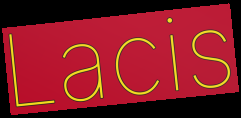
Lacis